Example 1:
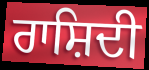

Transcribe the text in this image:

ਰਾਸ਼ਿਦੀ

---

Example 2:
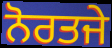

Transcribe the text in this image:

ਨੋਰਤਜੇ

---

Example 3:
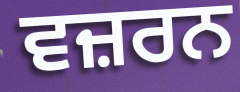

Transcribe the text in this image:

ਵਜ਼ਰਨ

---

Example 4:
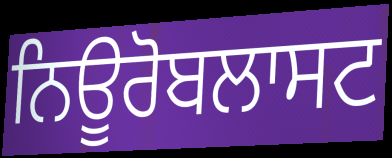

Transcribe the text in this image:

ਨਿਊਰੋਬਲਾਸਟ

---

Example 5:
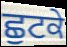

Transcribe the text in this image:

ਛੁਟਕੇ